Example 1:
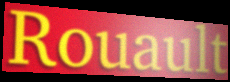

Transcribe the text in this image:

Rouault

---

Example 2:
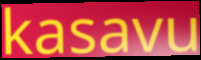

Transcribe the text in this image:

kasavu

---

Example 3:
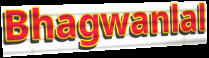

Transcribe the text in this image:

Bhagwanlal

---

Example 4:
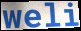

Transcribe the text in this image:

weli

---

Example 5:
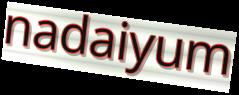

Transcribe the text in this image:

nadaiyum